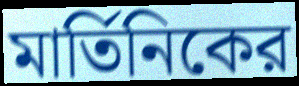
মার্তিনিকের